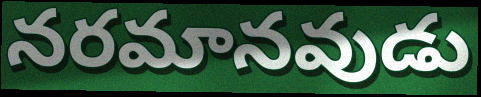
నరమానవుడు